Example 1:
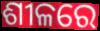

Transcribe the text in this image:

ଶୀଳରେ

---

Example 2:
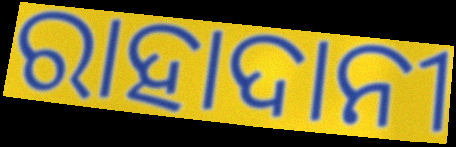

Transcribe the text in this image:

ରାହାଦାନୀ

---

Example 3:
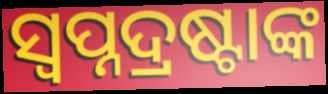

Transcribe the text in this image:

ସ୍ୱପ୍ନଦ୍ରଷ୍ଟାଙ୍କ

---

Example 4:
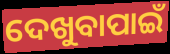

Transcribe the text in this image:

ଦେଖୁବାପାଇଁ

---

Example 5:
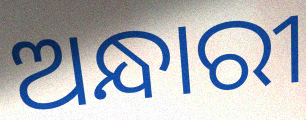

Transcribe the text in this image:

ଅନ୍ଧାରୀ